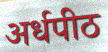
अर्धपीठ